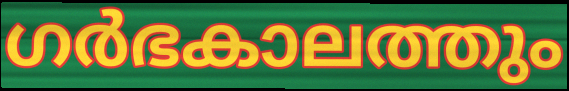
ഗർഭകാലത്തും